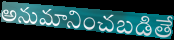
అనుమానించబడితే